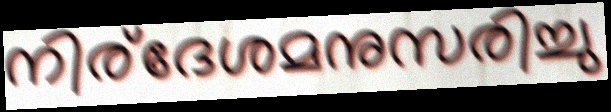
നിര്ദേശമനുസരിച്ചു